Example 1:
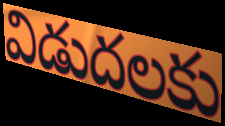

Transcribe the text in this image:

విడుదలకు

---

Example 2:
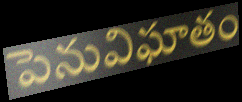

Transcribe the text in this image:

పెనువిఘాతం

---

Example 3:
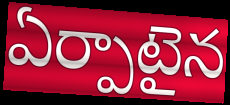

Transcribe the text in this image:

ఏర్పాటైన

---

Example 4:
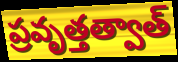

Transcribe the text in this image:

ప్రవృత్తత్వాత్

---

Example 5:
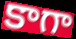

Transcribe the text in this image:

కాగా